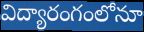
విద్యారంగంలోనూ